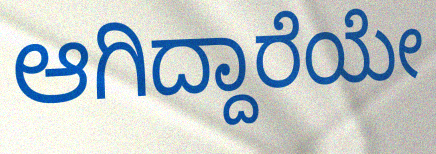
ಆಗಿದ್ದಾರೆಯೇ